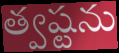
త్వష్టను